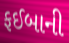
ફઈબાની